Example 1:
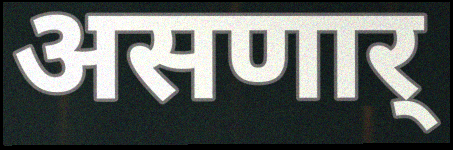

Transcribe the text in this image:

असणार्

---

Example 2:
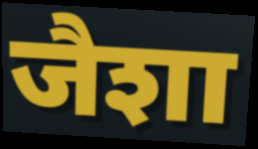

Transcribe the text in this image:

जैशा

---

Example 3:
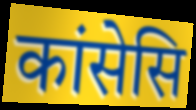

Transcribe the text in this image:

कांसेसि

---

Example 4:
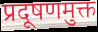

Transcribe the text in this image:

प्रदूषणमुक्त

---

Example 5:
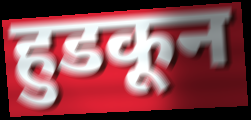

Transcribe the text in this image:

हुडकून